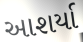
આશર્યા